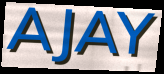
AJAY